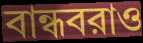
বান্ধবরাও